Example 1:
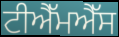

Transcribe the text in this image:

ਟੀਐੱਮਐੱਸ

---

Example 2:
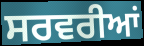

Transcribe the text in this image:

ਸਰਵਰੀਆਂ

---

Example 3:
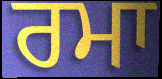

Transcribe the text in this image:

ਰਮਾ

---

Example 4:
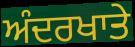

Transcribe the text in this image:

ਅੰਦਰਖਾਤੇ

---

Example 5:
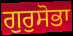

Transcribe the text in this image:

ਗੁਰੁਸੋਭਾ